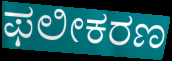
ಫಲೀಕರಣ